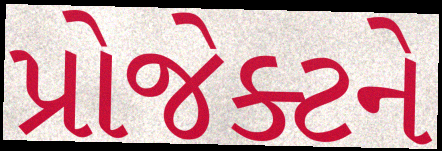
પ્રોજેક્ટને